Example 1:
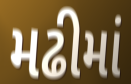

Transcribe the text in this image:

મઢીમાં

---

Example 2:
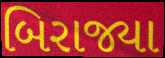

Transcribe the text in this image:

બિરાજ્યા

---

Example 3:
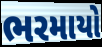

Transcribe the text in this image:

ભરમાયો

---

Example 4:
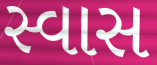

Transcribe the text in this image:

સ્વાસ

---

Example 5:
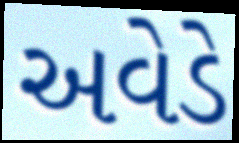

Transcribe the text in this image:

અવેડે